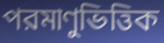
পরমাণুভিত্তিক